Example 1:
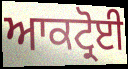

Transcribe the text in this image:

ਆਕਟ੍ਰੋਈ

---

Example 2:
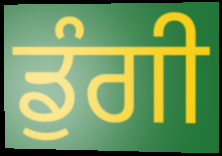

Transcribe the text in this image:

ਡੁੰਗੀ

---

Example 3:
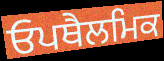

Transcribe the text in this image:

ਓਪਥੈਲਮਿਕ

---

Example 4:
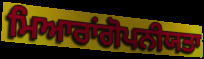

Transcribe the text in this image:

ਮਿਆਰਾਂਗੋਪਨੀਯਤਾ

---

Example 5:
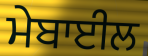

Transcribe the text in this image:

ਮੇਬਾਈਲ